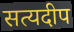
सत्यदीप